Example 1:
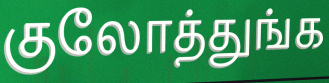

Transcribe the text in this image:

குலோத்துங்க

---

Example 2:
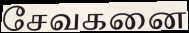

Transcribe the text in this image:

சேவகனை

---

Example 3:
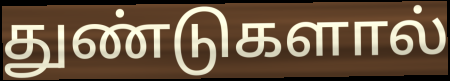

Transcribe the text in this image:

துண்டுகளால்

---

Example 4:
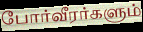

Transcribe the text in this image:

போர்வீரர்களும்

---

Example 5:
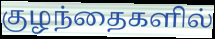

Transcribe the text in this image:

குழந்தைகளில்